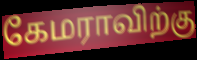
கேமராவிற்கு